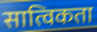
सात्विकता